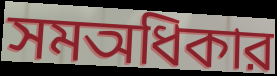
সমঅধিকার